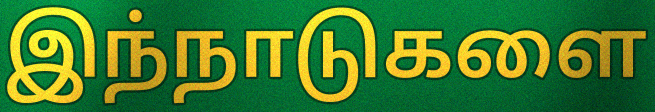
இந்நாடுகளை